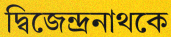
দ্বিজেন্দ্রনাথকে